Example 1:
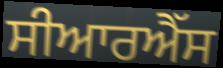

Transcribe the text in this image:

ਸੀਆਰਐੱਸ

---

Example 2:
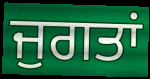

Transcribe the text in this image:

ਜੁਗਤਾਂ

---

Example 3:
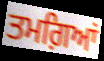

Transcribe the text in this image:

ਤਮਗ਼ਿਆਂ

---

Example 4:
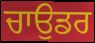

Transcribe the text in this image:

ਚਾਉਡਰ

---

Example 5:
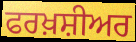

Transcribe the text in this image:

ਫਰਖ਼ਸ਼ੀਅਰ